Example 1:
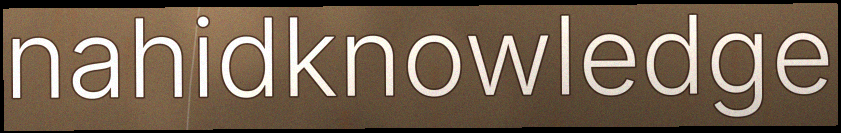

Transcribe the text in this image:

nahidknowledge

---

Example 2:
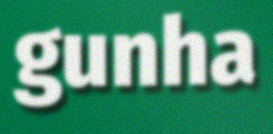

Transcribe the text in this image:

gunha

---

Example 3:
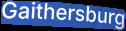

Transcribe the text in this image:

Gaithersburg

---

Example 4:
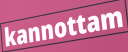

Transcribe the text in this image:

kannottam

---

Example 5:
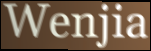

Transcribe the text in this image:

Wenjia